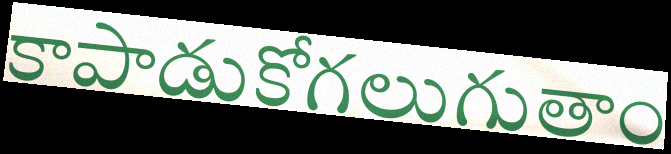
కాపాడుకోగలుగుతాం